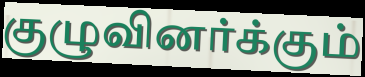
குழுவினர்க்கும்